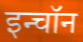
इन्चॉन